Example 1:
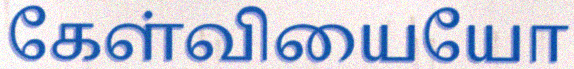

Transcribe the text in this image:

கேள்வியையோ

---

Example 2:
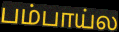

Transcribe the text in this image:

பம்பாய்ல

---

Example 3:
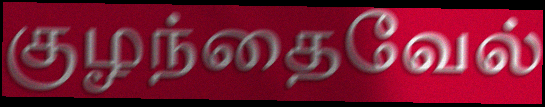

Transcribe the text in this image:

குழந்தைவேல்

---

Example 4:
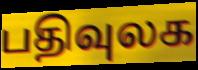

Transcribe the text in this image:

பதிவுலக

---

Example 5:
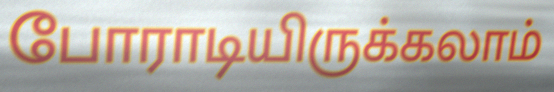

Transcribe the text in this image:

போராடியிருக்கலாம்